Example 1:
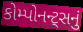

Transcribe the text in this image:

કોમ્પોનન્ટ્સનું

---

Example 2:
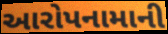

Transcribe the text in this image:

આરોપનામાની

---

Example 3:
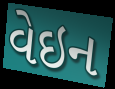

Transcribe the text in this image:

વેઇન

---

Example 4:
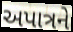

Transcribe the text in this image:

અપાત્રને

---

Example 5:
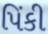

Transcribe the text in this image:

પિંકી